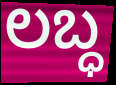
ಲಬ್ಧ